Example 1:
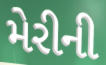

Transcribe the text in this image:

મેરીની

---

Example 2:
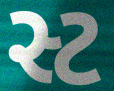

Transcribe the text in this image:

સ્ટ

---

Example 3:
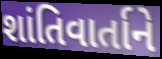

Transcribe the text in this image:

શાંતિવાર્તાને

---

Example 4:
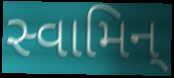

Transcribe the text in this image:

સ્વામિન્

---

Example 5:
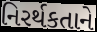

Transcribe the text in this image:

નિરર્થકતાને